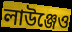
লাউঞ্জেও